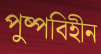
পুষ্পবিহীন